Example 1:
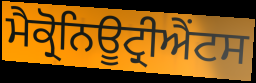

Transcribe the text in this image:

ਮੈਕ੍ਰੋਨਿਊਟ੍ਰੀਐਂਟਸ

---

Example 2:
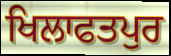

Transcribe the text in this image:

ਖਿਲਾਫਤਪੁਰ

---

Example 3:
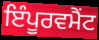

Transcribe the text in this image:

ਇੰਪੂਰਵਮੈਂਟ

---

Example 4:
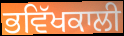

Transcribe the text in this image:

ਭਵਿੱਖਕਾਲੀ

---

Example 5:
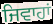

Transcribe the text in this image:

ਜਿਵਾਹਾਂ